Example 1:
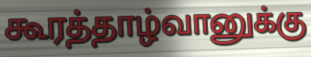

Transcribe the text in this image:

கூரத்தாழ்வானுக்கு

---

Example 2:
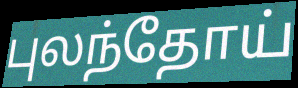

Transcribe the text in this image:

புலந்தோய்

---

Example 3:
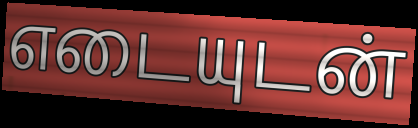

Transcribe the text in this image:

எடையுடன்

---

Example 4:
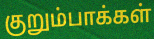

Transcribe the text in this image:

குறும்பாக்கள்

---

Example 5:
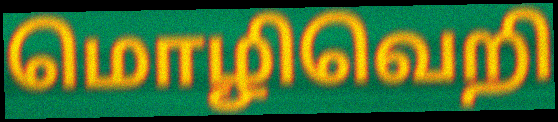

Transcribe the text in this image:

மொழிவெறி